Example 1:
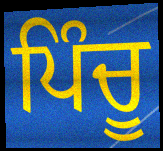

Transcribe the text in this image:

ਪਿੰਚੂ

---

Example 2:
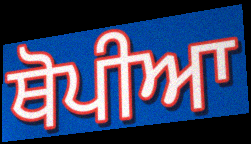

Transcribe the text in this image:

ਥੋਪੀਆ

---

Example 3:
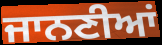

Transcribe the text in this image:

ਜਾਨਣੀਆਂ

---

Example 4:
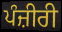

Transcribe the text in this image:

ਪੰਜ਼ੀਰੀ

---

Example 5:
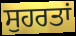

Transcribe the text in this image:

ਸੁਹਰਤਾਂ